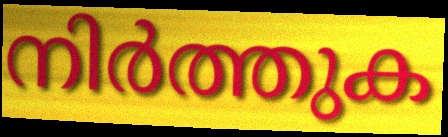
നിർത്തുക